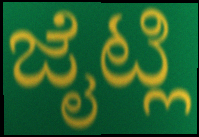
ಜೈಟ್ಲಿ